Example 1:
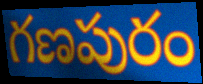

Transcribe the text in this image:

గణపురం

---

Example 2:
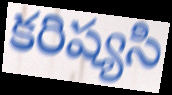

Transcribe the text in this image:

కరిష్యసి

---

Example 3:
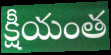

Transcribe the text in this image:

క్షీయంత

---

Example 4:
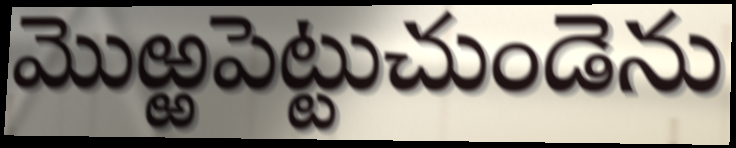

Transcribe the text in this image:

మొఱ్ఱపెట్టుచుండెను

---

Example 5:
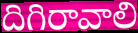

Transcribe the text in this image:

దిగిరావాలి